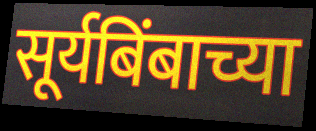
सूर्यबिंबाच्या